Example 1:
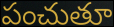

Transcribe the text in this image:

పంచుతూ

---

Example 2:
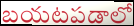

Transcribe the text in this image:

బయటపడాలో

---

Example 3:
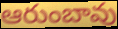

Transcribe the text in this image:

ఆరుంబావు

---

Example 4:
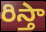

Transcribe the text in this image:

రిస్తా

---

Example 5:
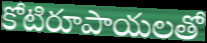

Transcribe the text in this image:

కోటిరూపాయలతో